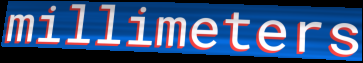
millimeters